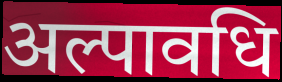
अल्पावधि